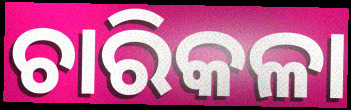
ଚାରିକଳା